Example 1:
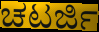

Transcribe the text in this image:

ಚಟರ್ಜಿ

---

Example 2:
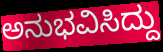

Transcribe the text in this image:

ಅನುಭವಿಸಿದ್ದು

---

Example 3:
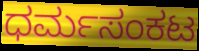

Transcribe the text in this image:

ಧರ್ಮಸಂಕಟ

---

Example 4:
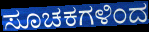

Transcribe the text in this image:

ಸೂಚಕಗಳಿಂದ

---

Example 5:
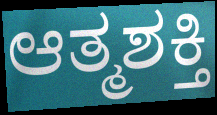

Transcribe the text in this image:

ಆತ್ಮಶಕ್ತಿ